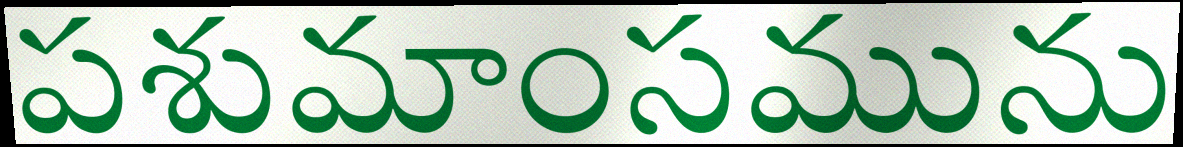
పశుమాంసమును